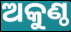
ଅକୁଣ୍ଠ